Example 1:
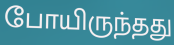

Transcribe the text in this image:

போயிருந்தது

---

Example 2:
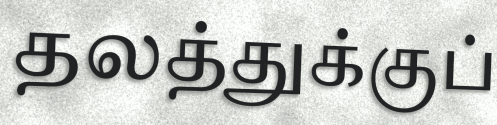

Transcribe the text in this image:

தலத்துக்குப்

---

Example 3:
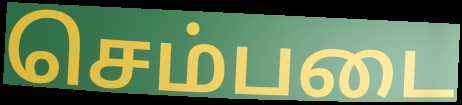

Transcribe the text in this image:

செம்படை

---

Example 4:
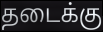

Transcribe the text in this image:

தடைக்கு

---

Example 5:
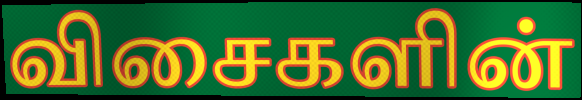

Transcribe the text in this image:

விசைகளின்